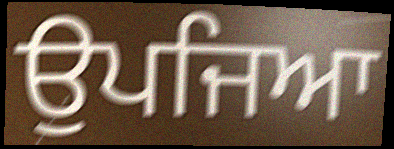
ਉਪਜਿਆ